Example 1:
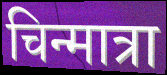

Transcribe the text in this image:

चिन्मात्रा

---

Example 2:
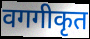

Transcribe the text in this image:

वगगीकृत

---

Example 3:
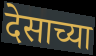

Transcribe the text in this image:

देसाच्या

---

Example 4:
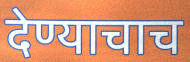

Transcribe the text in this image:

देण्याचाच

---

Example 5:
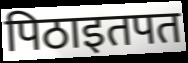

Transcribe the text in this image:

पिठाइतपत